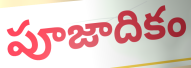
పూజాదికం